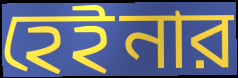
হেইনার